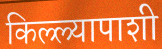
किल्ल्यापाशी